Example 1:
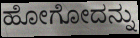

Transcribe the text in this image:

ಹೋಗೋದನ್ನು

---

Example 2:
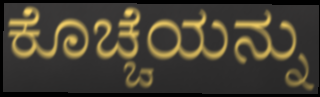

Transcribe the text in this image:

ಕೊಚ್ಚೆಯನ್ನು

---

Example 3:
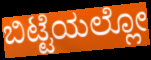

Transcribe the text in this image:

ಬಿಟ್ಟೆಯಲ್ಲೋ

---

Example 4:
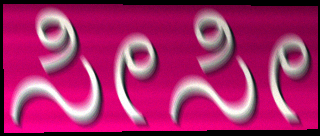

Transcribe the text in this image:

ಸೀಸೀ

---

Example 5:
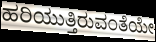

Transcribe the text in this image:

ಹರಿಯುತ್ತಿರುವಂತೆಯೇ